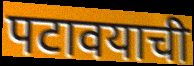
पटावयाची